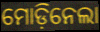
ମୋଡ଼ିନେଲା